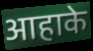
आहाके